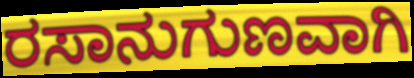
ರಸಾನುಗುಣವಾಗಿ